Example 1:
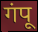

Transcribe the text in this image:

गंपू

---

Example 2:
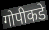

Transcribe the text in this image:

गोपीकडे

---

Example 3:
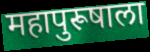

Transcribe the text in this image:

महापुरूषाला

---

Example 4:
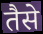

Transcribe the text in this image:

तैसे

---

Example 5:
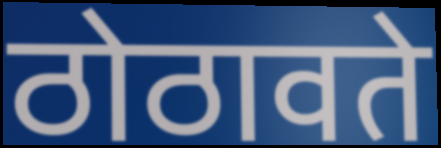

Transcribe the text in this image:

ठोठावते